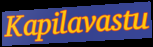
Kapilavastu